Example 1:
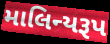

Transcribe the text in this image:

માલિન્યરૂપ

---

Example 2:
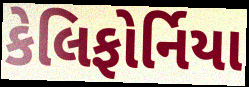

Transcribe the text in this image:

કેલિફોર્નિયા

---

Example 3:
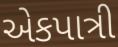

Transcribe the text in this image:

એકપાત્રી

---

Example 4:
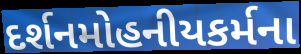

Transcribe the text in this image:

દર્શનમોહનીયકર્મના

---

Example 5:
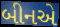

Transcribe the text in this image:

બીનએ